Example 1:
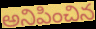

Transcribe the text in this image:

అనిపించిన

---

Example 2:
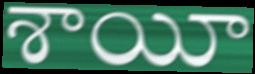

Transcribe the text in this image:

శాయీ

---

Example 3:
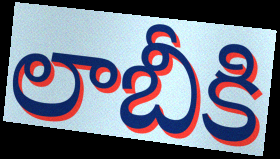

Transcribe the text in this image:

లాబీకి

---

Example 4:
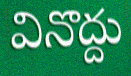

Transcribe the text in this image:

వినొద్దు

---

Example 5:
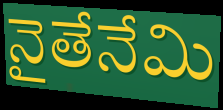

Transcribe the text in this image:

నైతేనేమి